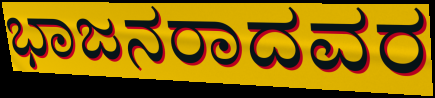
ಭಾಜನರಾದವರ